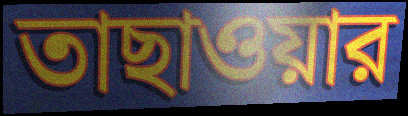
তাছাওয়ার